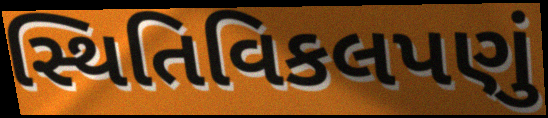
સ્થિતિવિકલપણું